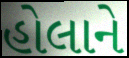
હોલાને